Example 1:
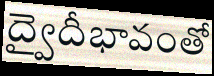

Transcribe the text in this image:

ద్వైదీభావంతో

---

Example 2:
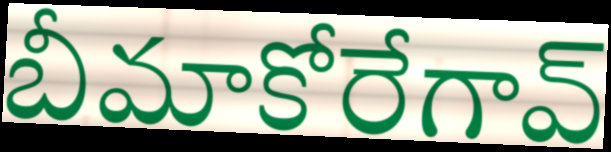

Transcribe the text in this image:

బీమాకోరేగావ్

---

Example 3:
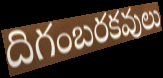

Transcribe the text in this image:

దిగంబరకవులు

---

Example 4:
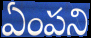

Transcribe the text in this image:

ఏంపని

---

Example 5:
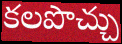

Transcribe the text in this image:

కలపొచ్చు